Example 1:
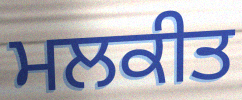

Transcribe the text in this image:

ਮਲਕੀਤ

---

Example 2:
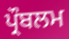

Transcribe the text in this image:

ਪ੍ਰੌਬਲਮ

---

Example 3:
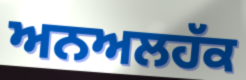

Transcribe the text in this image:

ਅਨਅਲਹੱਕ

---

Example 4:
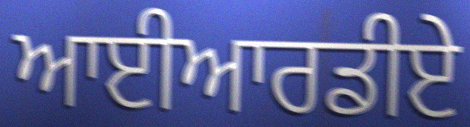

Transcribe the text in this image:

ਆਈਆਰਡੀਏ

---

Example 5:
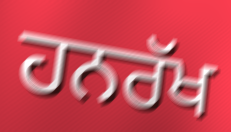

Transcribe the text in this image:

ਹਨਰੱਖ